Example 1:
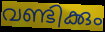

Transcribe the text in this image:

വണ്ടിക്കും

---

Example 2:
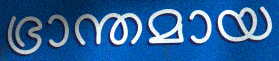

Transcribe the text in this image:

ഭ്രാന്തമായ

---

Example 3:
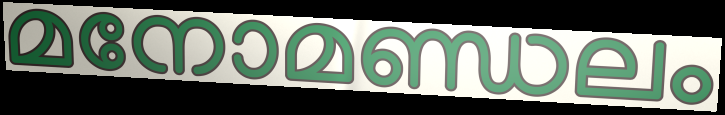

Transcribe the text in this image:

മനോമണ്ഡലം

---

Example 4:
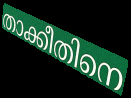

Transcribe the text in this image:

താക്കീതിനെ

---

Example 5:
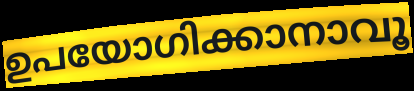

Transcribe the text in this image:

ഉപയോഗിക്കാനാവൂ